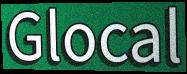
Glocal